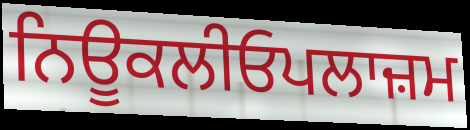
ਨਿਊਕਲੀਓਪਲਾਜ਼ਮ